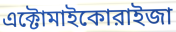
এক্টোমাইকোরাইজা